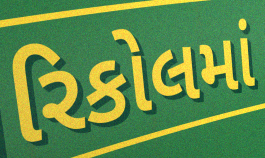
રિકોલમાં